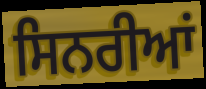
ਸਿਨਰੀਆਂ